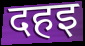
दहइ